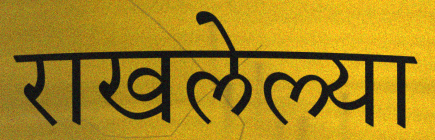
राखलेल्या